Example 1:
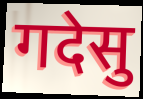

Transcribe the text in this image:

गदेसु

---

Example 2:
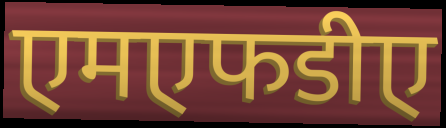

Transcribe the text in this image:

एमएफडीए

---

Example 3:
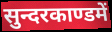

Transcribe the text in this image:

सुन्दरकाण्डमें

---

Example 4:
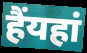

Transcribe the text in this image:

हैंयहां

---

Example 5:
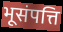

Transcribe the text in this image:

भूसंपत्ति